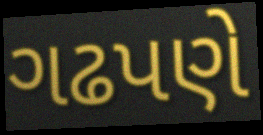
ગઢપણે